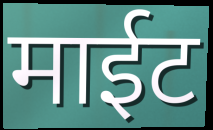
माईट